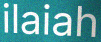
ilaiah